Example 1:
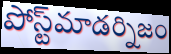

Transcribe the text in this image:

పోస్ట్‌మాడర్నిజం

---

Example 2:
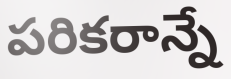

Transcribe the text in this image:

పరికరాన్నే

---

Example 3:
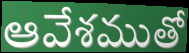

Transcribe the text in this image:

ఆవేశముతో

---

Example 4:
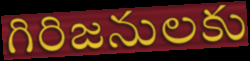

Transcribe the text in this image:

గిరిజనులకు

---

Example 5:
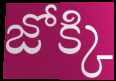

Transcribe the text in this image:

జోక్కి